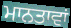
ਮਾਨਤਾਵਾਂ